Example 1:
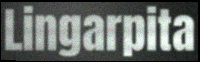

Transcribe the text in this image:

Lingarpita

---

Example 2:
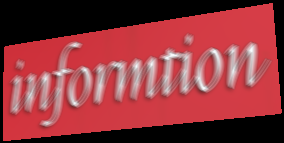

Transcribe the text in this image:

informtion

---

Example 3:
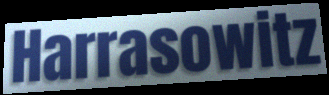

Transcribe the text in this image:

Harrasowitz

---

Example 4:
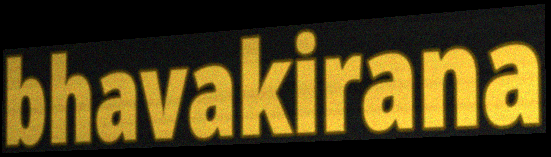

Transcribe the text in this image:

bhavakirana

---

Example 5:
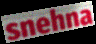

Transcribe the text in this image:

snehna